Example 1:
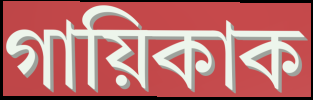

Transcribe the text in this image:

গায়িকাক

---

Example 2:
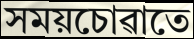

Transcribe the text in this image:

সময়চোৱাতে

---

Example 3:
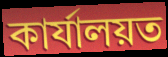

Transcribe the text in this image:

কাৰ্যালয়ত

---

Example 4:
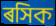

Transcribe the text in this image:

ৰসিক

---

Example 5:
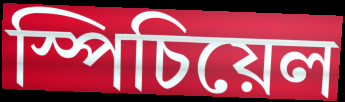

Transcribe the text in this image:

স্পিচিয়েল